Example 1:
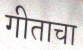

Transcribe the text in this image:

गीताचा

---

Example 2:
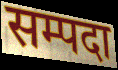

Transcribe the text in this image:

सम्पदा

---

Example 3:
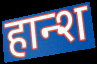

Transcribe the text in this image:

हान्श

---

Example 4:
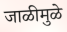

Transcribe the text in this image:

जाळीमुळे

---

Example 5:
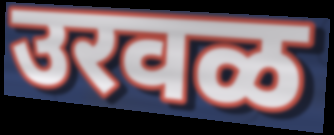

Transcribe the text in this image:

उरवळ